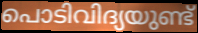
പൊടിവിദ്യയുണ്ട്